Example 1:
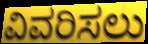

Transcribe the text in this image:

ವಿವರಿಸಲು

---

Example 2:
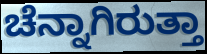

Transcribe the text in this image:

ಚೆನ್ನಾಗಿರುತ್ತಾ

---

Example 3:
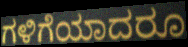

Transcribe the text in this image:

ಗಳಿಗೆಯಾದರೂ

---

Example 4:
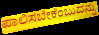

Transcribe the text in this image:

ಪಾಲಿಸಬೇಕೆಂಬುದನ್ನು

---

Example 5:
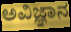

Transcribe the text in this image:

ಅವಿಜ್ಞಾನ